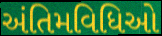
અંતિમવિધિઓ